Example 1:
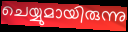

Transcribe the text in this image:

ചെയ്യുമായിരുന്നു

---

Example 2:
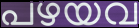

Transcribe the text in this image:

പഴയവ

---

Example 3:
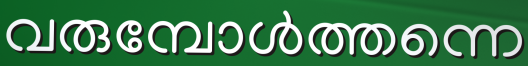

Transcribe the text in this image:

വരുമ്പോൾത്തന്നെ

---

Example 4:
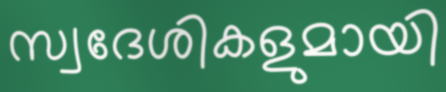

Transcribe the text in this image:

സ്വദേശികളുമായി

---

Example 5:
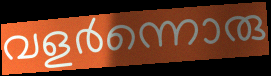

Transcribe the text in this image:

വളർന്നൊരു